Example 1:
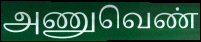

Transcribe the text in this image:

அணுவெண்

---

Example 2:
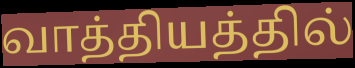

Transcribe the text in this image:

வாத்தியத்தில்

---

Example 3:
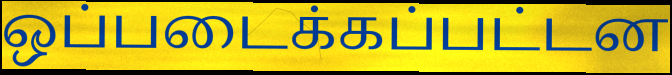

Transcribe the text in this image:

ஒப்படைக்கப்பட்டன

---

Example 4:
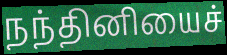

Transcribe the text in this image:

நந்தினியைச்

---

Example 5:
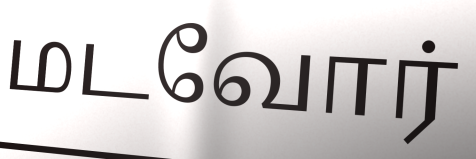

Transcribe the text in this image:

மடவோர்